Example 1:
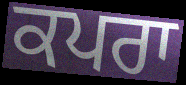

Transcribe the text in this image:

ਕਪਰਾ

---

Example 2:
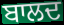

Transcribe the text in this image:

ਬਾਲਦ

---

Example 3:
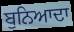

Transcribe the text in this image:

ਬੁਨਿਆਦਾ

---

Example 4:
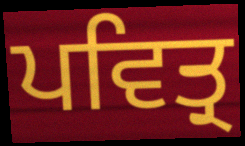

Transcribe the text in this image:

ਪਵਿਤ੍ਰ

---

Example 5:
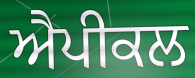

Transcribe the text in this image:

ਐਪੀਕਲ